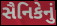
સૈનિકેનું